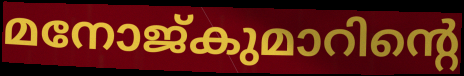
മനോജ്കുമാറിന്റെ